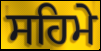
ਸਹਿਮੇ